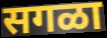
सगळा